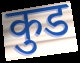
कुड